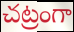
చట్రంగా